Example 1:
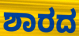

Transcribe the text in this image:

ಶಾರದ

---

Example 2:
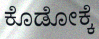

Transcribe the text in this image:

ಕೊಡೋಕ್ಕೆ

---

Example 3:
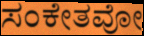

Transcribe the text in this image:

ಸಂಕೇತವೋ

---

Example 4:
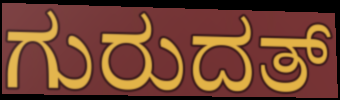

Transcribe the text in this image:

ಗುರುದತ್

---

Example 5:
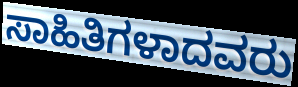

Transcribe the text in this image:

ಸಾಹಿತಿಗಳಾದವರು